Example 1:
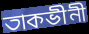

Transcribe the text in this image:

তাকভীনী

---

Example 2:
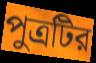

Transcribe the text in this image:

পুত্রটির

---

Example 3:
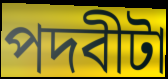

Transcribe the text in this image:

পদবীটা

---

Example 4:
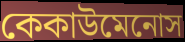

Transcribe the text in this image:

কেকাউমেনোস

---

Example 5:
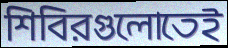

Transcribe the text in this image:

শিবিরগুলোতেই